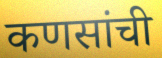
कणसांची